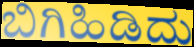
ಬಿಗಿಹಿಡಿದು